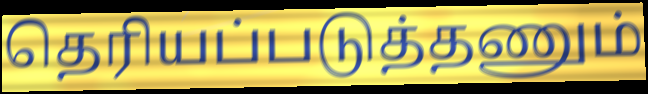
தெரியப்படுத்தணும்